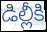
డిల్లీకి